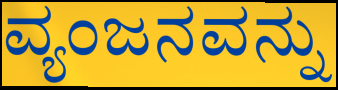
ವ್ಯಂಜನವನ್ನು